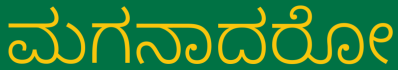
ಮಗನಾದರೋ